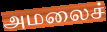
அமலைச்